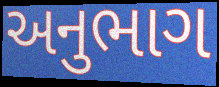
અનુભાગ